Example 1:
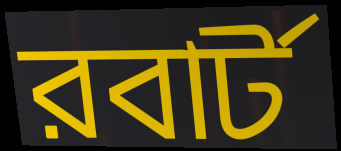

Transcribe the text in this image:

রবার্ট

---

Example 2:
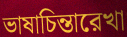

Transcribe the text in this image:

ভাষাচিন্তারেখা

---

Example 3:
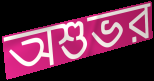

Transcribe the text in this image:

অশুভর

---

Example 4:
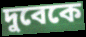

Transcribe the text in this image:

দুবেকে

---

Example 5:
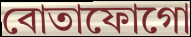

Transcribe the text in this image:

বোতাফোগো